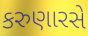
કરુણારસે